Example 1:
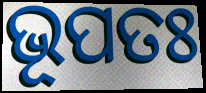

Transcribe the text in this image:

ଭୂପତଃ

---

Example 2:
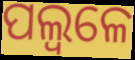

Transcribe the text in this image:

ପଲ୍ୱଳେ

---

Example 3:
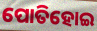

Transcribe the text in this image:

ପୋତିହୋଇ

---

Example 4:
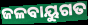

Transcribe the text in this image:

ଜଳଵାୟୁଗତ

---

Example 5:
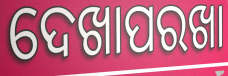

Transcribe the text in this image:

ଦେଖାପରଖା